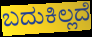
ಬದುಕಿಲ್ಲದೆ